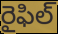
రైఫిల్